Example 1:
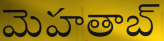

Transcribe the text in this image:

మెహతాబ్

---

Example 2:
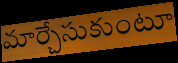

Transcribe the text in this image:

మార్చేసుకుంటూ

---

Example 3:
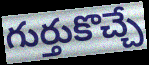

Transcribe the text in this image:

గుర్తుకొచ్చే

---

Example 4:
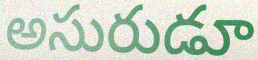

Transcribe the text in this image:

అసురుడూ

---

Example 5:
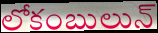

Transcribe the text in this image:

లోకంబులున్